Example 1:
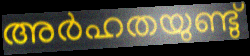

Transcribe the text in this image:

അർഹതയുണ്ടു്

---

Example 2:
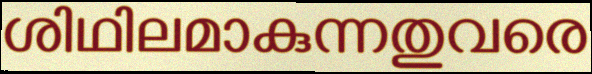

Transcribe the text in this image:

ശിഥിലമാകുന്നതുവരെ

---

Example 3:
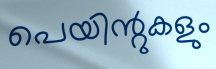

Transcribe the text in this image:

പെയിന്റുകളും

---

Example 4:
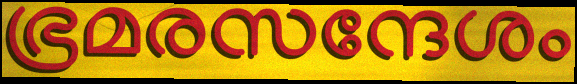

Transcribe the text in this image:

ഭ്രമരസന്ദേശം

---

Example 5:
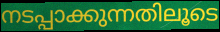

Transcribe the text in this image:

നടപ്പാക്കുന്നതിലൂടെ